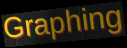
Graphing